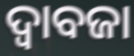
ଦ୍ୱାବଜା